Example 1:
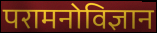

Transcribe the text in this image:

परामनोविज्ञान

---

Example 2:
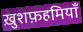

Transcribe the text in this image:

ख़ुशफ़हमियाँ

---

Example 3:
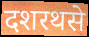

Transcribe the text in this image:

दशरथसे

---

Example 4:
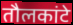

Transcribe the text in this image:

तौलकांटे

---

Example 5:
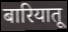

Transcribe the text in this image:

बारियातू